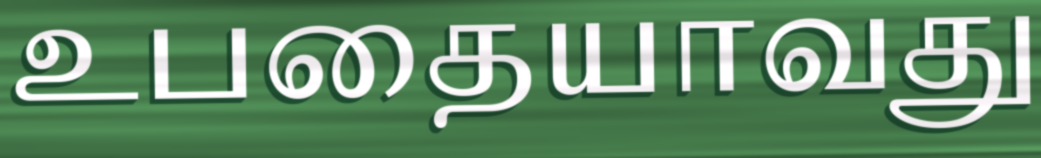
உபதையாவது